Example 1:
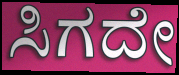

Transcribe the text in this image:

ಸಿಗದೇ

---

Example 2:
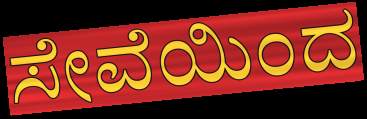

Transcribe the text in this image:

ಸೇವೆಯಿಂದ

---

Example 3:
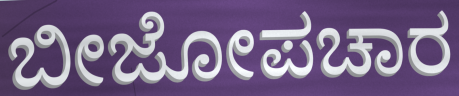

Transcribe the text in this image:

ಬೀಜೋಪಚಾರ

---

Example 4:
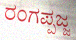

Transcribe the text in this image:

ರಂಗಪ್ಪಜ್ಜ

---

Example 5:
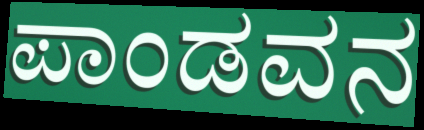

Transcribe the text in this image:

ಪಾಂಡವನ